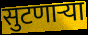
सुटणाऱ्या